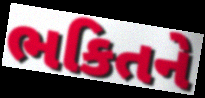
ભકિતને